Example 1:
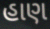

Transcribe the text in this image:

હાણ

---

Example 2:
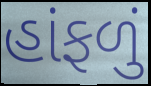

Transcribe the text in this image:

હાંફળું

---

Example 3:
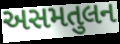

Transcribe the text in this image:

અસમતુલન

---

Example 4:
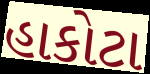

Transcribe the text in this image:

હાકોટા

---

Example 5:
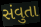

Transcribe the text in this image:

સંવુતા